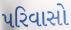
પરિવાસો